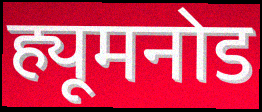
ह्यूमनोड